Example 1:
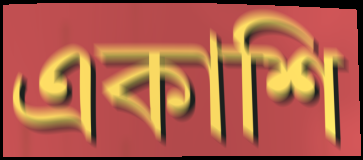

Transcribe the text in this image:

একাশি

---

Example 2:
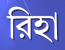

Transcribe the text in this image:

রিহা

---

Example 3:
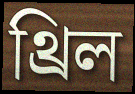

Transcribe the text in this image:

থ্রিল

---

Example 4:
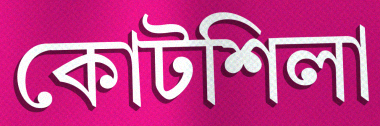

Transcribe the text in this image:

কোটশিলা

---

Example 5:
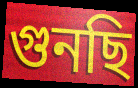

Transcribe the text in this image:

গুনছি